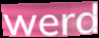
werd